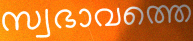
സ്വഭാവത്തെ